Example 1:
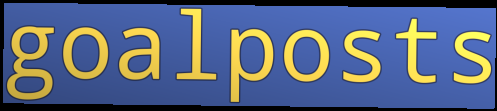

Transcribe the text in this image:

goalposts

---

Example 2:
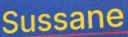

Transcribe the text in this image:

Sussane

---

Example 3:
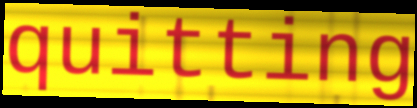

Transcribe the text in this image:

quitting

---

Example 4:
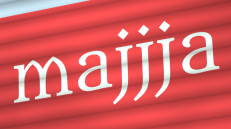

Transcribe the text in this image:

majjja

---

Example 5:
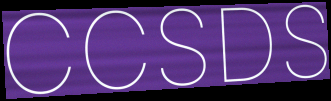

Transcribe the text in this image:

CCSDS